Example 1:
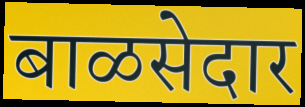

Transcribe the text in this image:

बाळसेदार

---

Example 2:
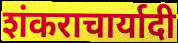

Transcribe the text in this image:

शंकराचार्यादी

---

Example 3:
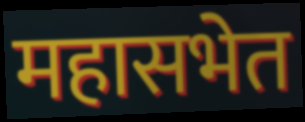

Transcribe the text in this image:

महासभेत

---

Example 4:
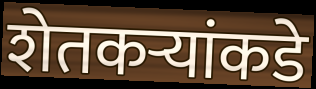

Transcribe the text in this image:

शेतकर्‍यांकडे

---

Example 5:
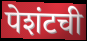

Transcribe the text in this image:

पेशंटची